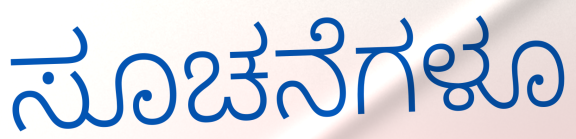
ಸೂಚನೆಗಳೂ